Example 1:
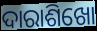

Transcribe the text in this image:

ଦାରାଶିଖୋ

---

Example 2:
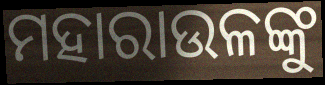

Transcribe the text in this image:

ମହାରାଉଳଙ୍କୁ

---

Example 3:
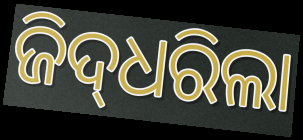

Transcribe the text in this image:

ଜିଦ୍‌ଧରିଲା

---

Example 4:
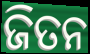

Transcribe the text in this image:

ଜିତନ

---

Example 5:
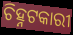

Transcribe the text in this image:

ଚିହ୍ନଟକାରୀ